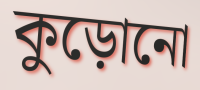
কুড়োনো